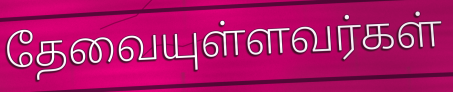
தேவையுள்ளவர்கள்